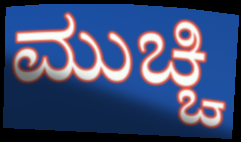
ಮುಚ್ಚಿ